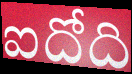
ఐదోది